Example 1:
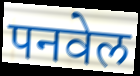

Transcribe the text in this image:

पनवेल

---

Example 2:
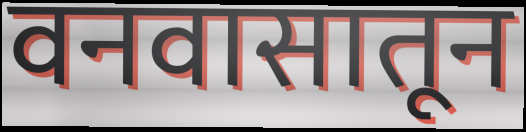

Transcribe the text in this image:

वनवासातून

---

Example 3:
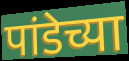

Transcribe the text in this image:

पांडेच्या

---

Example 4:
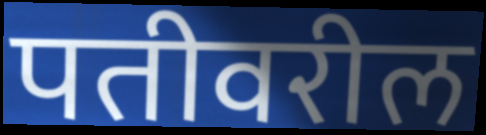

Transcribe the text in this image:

पतीवरील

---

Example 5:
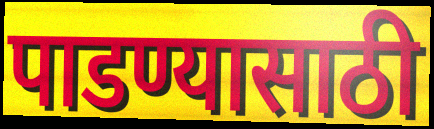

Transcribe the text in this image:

पाडण्यासाठी